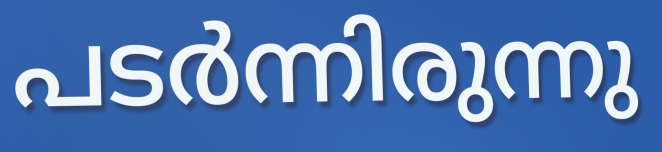
പടർന്നിരുന്നു